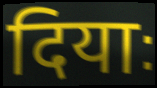
दियाः